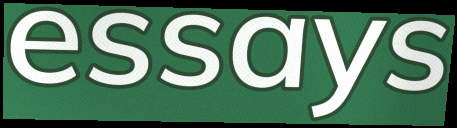
essays